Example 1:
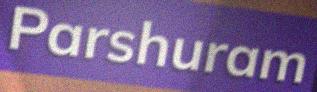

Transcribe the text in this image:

Parshuram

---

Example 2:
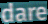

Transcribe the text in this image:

dare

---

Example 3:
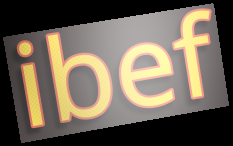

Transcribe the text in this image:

ibef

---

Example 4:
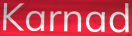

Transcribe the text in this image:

Karnad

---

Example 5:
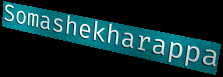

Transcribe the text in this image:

Somashekharappa